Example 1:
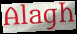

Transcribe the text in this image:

Alagh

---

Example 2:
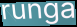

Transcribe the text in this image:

runga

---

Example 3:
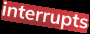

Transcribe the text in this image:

interrupts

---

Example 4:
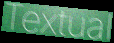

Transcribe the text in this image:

Textual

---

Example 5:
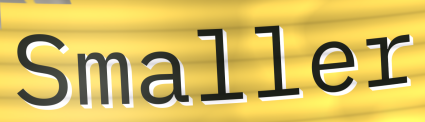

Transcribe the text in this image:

Smaller